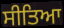
ਸੀਤਿਆ